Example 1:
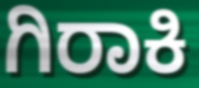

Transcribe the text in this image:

ಗಿರಾಕಿ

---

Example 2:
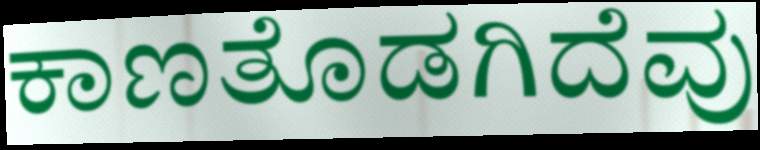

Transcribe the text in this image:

ಕಾಣತೊಡಗಿದೆವು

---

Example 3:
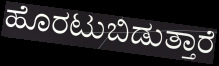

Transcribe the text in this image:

ಹೊರಟುಬಿಡುತ್ತಾರೆ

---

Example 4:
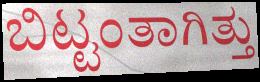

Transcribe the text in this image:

ಬಿಟ್ಟಂತಾಗಿತ್ತು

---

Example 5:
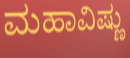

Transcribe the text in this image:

ಮಹಾವಿಷ್ಣು